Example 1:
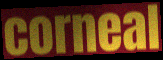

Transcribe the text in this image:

corneal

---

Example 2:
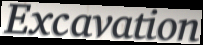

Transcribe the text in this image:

Excavation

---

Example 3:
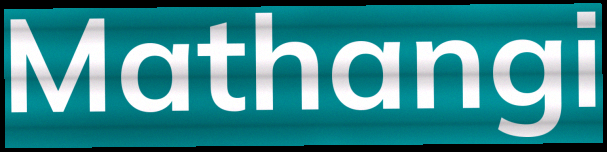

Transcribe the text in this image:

Mathangi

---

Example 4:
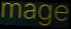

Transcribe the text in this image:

mage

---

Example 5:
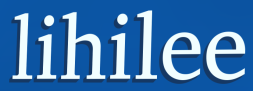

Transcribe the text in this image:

lihilee